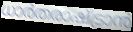
ധാർതരാഷ്ട്രാൻ